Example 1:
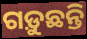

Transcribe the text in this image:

ଗଡ଼ୁଛନ୍ତି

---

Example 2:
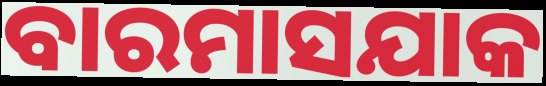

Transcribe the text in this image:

ବାରମାସଯାକ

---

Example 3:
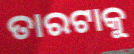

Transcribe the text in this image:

ତାରଟାକୁ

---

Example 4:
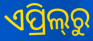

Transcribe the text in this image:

ଏପ୍ରିଲ୍‍ରୁ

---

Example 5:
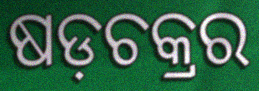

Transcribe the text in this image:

ଷଡ଼ଚକ୍ରର